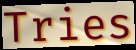
Tries